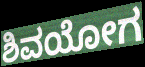
ಶಿವಯೋಗ